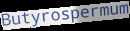
Butyrospermum